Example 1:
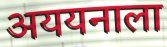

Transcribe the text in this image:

अययनाला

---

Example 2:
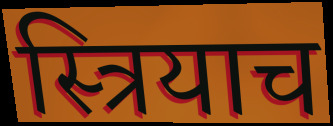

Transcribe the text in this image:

स्त्रियाच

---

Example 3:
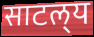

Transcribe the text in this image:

साटल्य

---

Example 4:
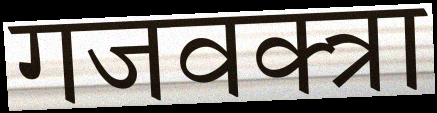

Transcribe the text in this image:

गजवक्त्रा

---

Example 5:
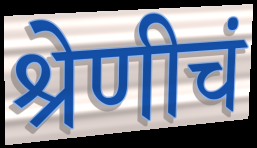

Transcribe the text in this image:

श्रेणीचं